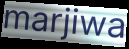
marjiwa